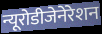
न्यूरोडीजेनेरेशन